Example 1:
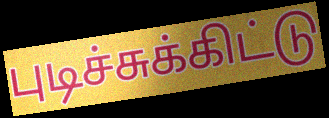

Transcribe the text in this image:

புடிச்சுக்கிட்டு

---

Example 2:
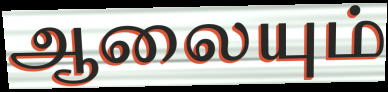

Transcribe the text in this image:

ஆலையும்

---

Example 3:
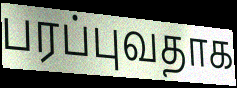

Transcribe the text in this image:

பரப்புவதாக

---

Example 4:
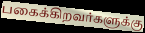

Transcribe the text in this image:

பகைக்கிறவர்களுக்கு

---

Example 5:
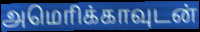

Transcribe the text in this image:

அமெரிக்காவுடன்